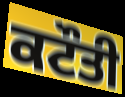
ਕਟੌਤੀ